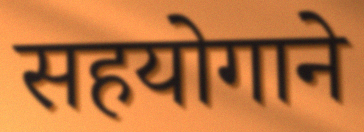
सहयोगाने